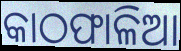
କାଠଫାଳିଆ